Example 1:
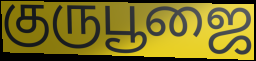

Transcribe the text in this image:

குருபூஜை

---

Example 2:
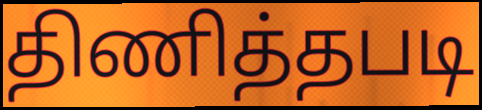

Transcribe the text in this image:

திணித்தபடி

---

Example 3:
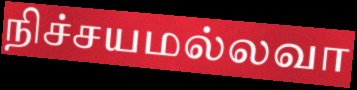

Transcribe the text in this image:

நிச்சயமல்லவா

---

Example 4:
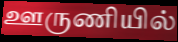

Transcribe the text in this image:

ஊருணியில்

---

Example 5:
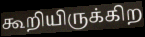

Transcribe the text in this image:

கூறியிருக்கிற